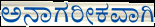
ಅನಾಗರೀಕವಾಗಿ